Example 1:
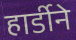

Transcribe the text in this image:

हार्डीने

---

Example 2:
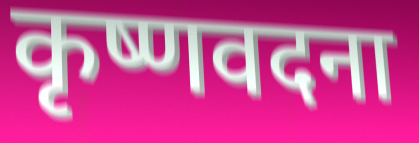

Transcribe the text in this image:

कृष्णवदना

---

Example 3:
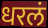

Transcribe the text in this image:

धरलं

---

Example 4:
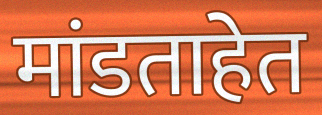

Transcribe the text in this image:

मांडताहेत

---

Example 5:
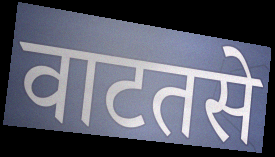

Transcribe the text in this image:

वाटतसे